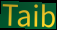
Taib